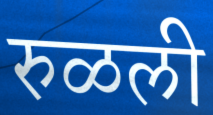
रुळली